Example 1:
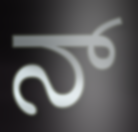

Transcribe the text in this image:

ನ್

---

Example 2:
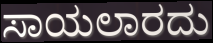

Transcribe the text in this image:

ಸಾಯಲಾರದು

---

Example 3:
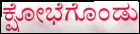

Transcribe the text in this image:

ಕ್ಷೋಭೆಗೊಂಡು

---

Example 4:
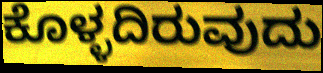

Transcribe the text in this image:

ಕೊಳ್ಳದಿರುವುದು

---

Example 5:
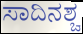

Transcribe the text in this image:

ಸಾದಿನಶ್ಚ